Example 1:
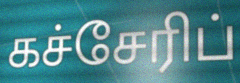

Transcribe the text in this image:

கச்சேரிப்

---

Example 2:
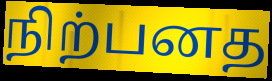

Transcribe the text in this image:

நிற்பனத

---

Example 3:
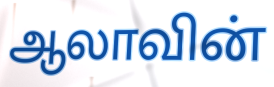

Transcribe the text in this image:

ஆலாவின்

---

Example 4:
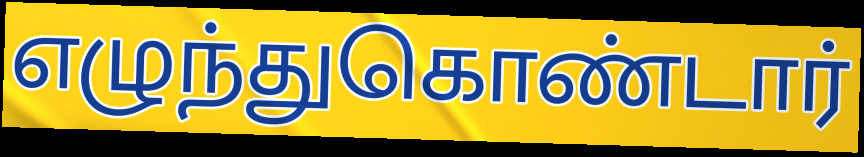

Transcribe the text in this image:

எழுந்துகொண்டார்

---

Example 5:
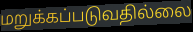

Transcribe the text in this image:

மறுக்கப்படுவதில்லை